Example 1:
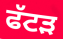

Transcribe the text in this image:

ਫੱਟੜ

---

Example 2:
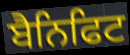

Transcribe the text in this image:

ਬੈਨਿਫਿਟ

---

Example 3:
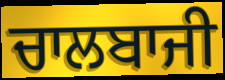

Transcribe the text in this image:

ਚਾਲਬਾਜੀ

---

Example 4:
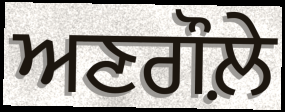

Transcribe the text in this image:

ਅਣਗੌਲ਼ੇ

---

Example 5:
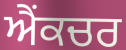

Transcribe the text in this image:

ਐਂਕਚਰ